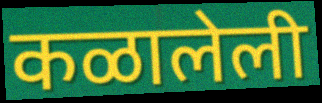
कळालेली